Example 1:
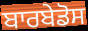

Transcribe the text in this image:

ਬਾਰਬੇਡੋਸ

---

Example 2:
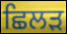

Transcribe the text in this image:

ਛਿਲੜ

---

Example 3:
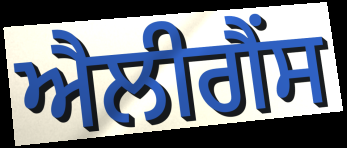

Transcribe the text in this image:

ਐਲੀਗੈਂਸ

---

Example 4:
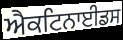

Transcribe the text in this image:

ਐਕਟਿਨਾਈਡਸ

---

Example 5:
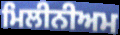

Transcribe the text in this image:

ਮਿਲੀਨੀਅਮ